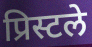
प्रिस्टले